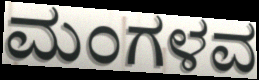
ಮಂಗಳವ